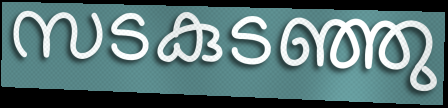
സടകുടഞ്ഞു